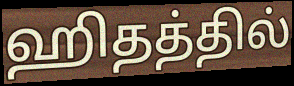
ஹிதத்தில்